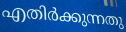
എതിർക്കുന്നതു